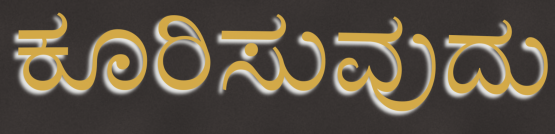
ಕೂರಿಸುವುದು